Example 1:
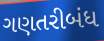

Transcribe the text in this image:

ગણતરીબંધ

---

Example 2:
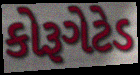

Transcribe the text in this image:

કોરૂગેટેડ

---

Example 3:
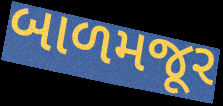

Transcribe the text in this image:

બાળમજૂર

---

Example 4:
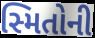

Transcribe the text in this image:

સ્મિતોની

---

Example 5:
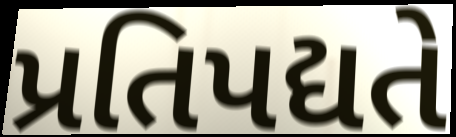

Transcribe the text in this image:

પ્રતિપદ્યતે